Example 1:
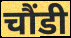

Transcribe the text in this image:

चौंडी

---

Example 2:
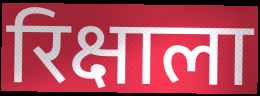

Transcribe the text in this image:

रिक्षाला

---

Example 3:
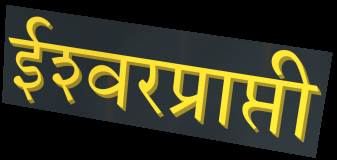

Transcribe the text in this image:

ईश्वरप्राप्ती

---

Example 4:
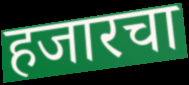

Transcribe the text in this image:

हजारचा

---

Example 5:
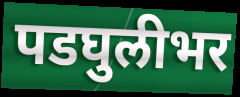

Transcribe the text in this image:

पडघुलीभर